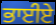
ਭਾਈਏ